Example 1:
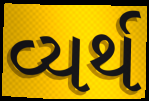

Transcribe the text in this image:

વ્યર્થ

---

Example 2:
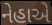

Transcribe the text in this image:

નેહાએ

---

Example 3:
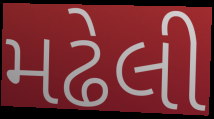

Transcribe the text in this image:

મઢેલી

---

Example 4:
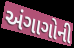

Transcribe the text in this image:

અંગાગોની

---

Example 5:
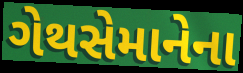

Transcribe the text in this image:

ગેથસેમાનેના